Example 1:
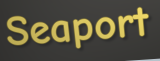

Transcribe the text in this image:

Seaport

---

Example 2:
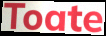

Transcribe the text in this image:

Toate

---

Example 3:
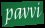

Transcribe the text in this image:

pavvi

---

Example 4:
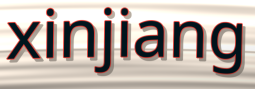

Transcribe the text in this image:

xinjiang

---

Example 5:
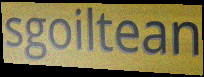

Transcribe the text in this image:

sgoiltean